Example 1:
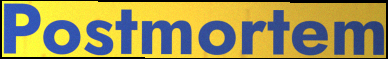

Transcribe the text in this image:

Postmortem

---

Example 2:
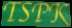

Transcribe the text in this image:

TSPK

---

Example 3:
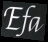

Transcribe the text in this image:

Efa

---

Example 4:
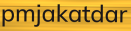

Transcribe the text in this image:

pmjakatdar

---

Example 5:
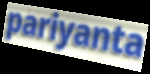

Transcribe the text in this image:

pariyanta